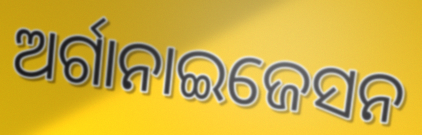
ଅର୍ଗାନାଇଜେସନ